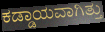
ಕಡ್ಡಾಯವಾಗಿತ್ತು